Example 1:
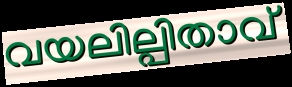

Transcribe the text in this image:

വയലില്പിതാവ്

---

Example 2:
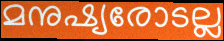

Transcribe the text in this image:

മനുഷ്യരോടല്ല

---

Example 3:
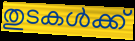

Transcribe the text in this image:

തുടകൾക്ക്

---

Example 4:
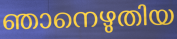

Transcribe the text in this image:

ഞാനെഴുതിയ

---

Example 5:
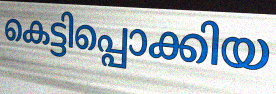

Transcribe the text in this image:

കെട്ടിപ്പൊക്കിയ